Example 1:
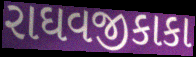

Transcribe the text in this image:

રાઘવજીકાકા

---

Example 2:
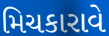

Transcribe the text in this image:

મિચકારાવે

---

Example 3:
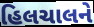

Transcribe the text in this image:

હિલચાલને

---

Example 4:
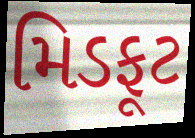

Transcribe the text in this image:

મિડફૂટ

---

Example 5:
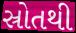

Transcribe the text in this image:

સ્રોતથી